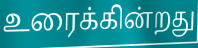
உரைக்கின்றது